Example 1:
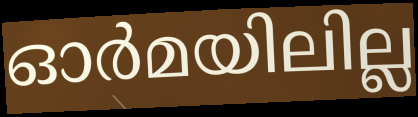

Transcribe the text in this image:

ഓർമയിലില്ല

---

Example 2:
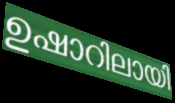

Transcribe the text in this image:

ഉഷാറിലായി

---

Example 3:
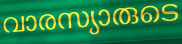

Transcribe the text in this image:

വാരസ്യാരുടെ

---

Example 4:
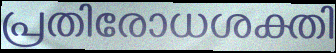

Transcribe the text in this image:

പ്രതിരോധശക്തി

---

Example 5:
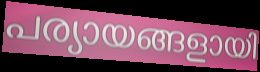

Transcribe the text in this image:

പര്യായങ്ങളായി